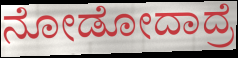
ನೋಡೋದಾದ್ರೆ